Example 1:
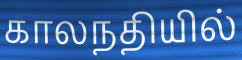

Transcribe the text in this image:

காலநதியில்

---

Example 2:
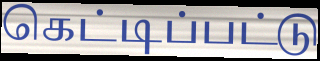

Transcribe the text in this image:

கெட்டிப்பட்டு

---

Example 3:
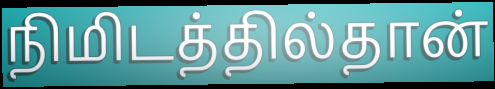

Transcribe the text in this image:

நிமிடத்தில்தான்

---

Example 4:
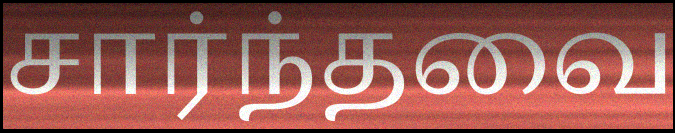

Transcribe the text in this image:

சார்ந்தவை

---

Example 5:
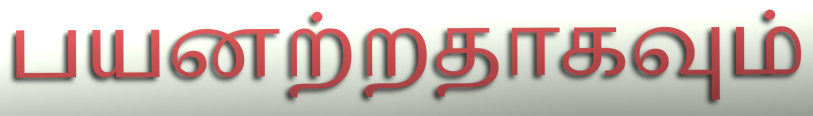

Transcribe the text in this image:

பயனற்றதாகவும்